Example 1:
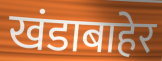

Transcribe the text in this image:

खंडाबाहेर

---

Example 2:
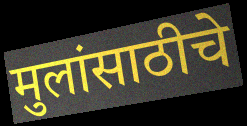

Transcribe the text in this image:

मुलांसाठीचे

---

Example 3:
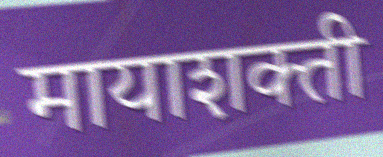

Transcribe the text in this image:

मायाशक्ती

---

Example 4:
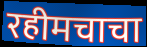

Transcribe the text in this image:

रहीमचाचा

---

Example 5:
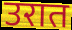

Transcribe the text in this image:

उरात